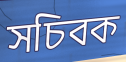
সচিবক